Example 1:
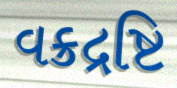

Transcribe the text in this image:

વક્રદ્રષ્ટિ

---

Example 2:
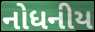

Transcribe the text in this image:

નોધનીય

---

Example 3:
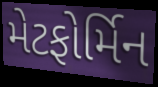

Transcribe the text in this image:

મેટફોર્મિન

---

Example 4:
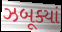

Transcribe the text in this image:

ઝબૂક્યાં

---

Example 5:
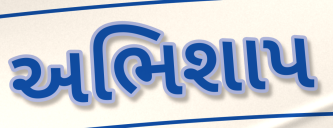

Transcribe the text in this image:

અભિશાપ